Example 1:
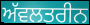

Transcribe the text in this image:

ਅੱਵਲਤਰੀਨ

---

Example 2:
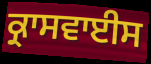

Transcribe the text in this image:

ਕ੍ਰਾਸਵਾਈਸ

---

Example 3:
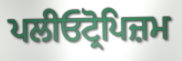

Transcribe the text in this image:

ਪਲੀਓਟ੍ਰੋਪਿਜ਼ਮ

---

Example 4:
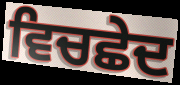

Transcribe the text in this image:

ਵਿਚਛੇਦ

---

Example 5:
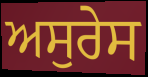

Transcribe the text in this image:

ਅਸੁਰੇਸ